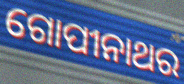
ଗୋପୀନାଥର